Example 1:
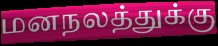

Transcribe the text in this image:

மனநலத்துக்கு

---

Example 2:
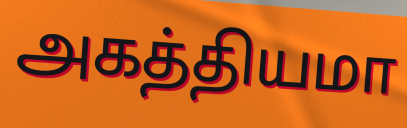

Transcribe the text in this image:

அகத்தியமா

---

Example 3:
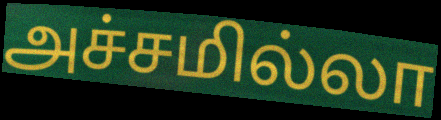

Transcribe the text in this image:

அச்சமில்லா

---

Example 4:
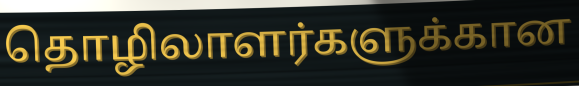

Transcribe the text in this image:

தொழிலாளர்களுக்கான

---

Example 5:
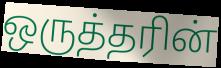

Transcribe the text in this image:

ஒருத்தரின்